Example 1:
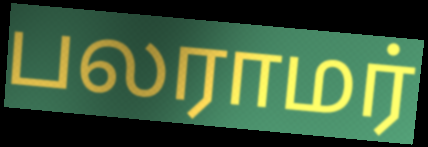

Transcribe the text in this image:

பலராமர்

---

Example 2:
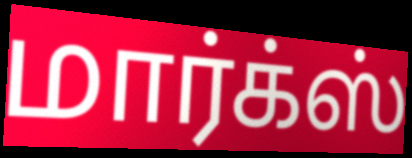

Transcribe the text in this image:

மார்க்ஸ்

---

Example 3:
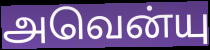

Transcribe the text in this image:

அவென்யு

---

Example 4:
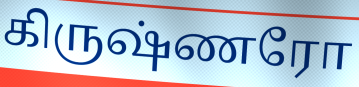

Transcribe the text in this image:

கிருஷ்ணரோ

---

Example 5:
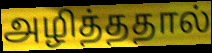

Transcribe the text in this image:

அழித்ததால்